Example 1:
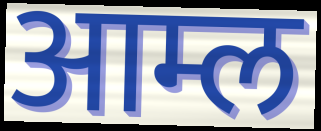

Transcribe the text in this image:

आम्ल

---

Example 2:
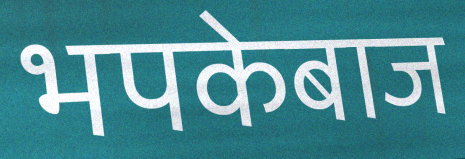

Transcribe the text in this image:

भपकेबाज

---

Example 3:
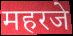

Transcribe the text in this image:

महरजे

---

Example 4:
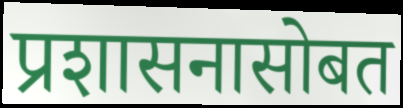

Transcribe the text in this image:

प्रशासनासोबत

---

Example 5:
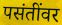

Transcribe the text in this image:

पसंतींवर